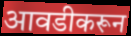
आवडीकरून